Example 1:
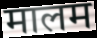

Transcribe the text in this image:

मालम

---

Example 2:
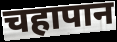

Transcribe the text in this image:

चहापान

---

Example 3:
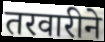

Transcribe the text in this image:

तरवारीने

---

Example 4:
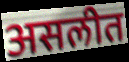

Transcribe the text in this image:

असलीत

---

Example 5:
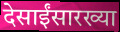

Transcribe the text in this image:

देसाईंसारख्या